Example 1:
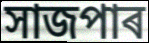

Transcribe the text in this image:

সাজপাৰ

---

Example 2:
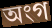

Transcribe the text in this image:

অংগ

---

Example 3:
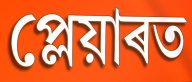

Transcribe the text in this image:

প্লেয়াৰত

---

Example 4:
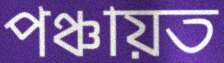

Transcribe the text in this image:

পঞ্চায়ত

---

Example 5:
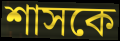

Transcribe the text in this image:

শাসকে